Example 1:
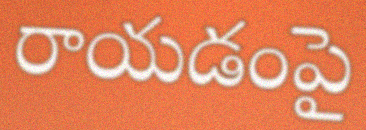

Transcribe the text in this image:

రాయడంపై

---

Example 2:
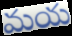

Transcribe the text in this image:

మయ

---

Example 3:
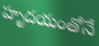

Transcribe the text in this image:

హృదయంతోనే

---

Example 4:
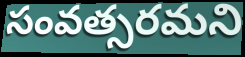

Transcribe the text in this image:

సంవత్సరమని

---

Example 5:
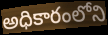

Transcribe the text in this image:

అధికారంలోని